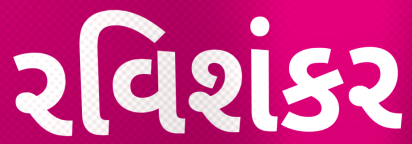
રવિશંકર